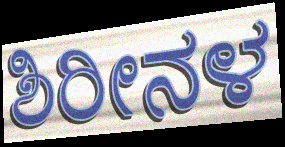
ಶಿರೀನಳ